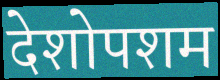
देशोपशम